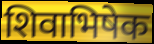
शिवाभिषेक